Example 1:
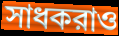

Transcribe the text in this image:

সাধকরাও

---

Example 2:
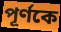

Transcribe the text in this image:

পূর্ণকে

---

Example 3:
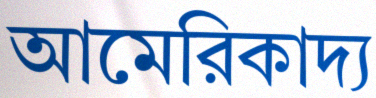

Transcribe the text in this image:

আমেরিকাদ্য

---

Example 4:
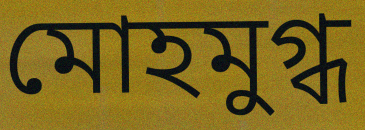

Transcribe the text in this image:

মোহমুগ্ধ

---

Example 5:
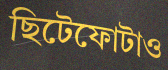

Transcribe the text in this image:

ছিটেফোটাও